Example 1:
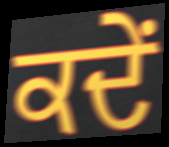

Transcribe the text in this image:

ਕਦੇਂ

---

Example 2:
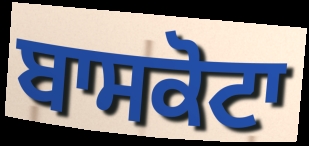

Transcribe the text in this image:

ਬਾਸਕੋਟਾ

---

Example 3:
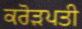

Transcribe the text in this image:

ਕਰੋੜਪਤੀ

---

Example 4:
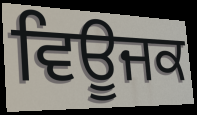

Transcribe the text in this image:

ਵਿਊਜਕ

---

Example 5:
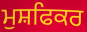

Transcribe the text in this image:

ਮੁਸ਼ਫਿਕਰ